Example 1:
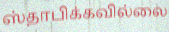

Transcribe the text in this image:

ஸ்தாபிக்கவில்லை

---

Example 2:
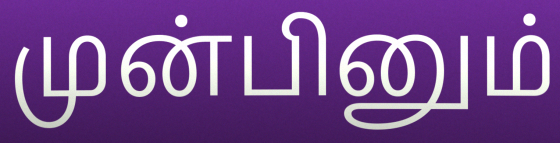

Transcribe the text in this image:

முன்பினும்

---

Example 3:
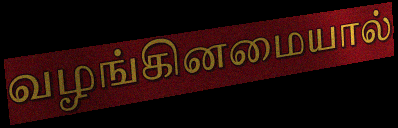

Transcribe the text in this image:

வழங்கினமையால்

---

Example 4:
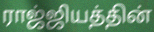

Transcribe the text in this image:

ராஜ்ஜியத்தின்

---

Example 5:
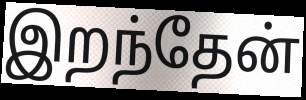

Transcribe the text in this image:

இறந்தேன்